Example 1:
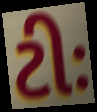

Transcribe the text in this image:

ટીઃ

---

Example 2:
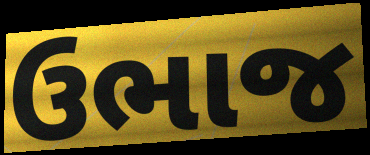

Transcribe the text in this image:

ઉભાજ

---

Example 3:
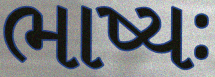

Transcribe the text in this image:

ભાષ્યઃ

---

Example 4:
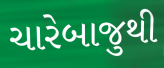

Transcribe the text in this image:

ચારેબાજુથી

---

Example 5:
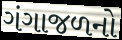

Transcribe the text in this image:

ગંગાજળનો